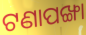
ଟଣାପଙ୍ଖା